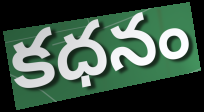
కధనం